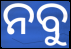
ନବୁ